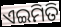
ଏଇମିତି